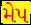
મેપ